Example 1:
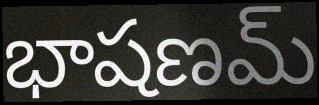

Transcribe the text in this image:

భాషణమ్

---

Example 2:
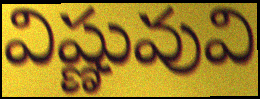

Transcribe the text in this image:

విష్ణువువి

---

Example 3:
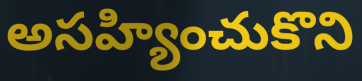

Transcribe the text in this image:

అసహ్యించుకొని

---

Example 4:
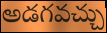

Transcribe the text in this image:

అడగవచ్చు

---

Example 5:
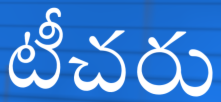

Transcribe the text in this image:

టీచరు